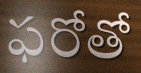
ఫరోతో